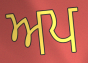
ਅਪ